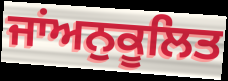
ਜਾਂਅਨੁਕੂਲਿਤ